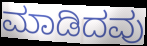
ಮಾಡಿದವು